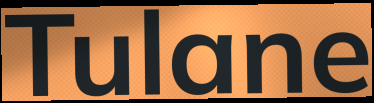
Tulane